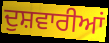
ਦੁਸ਼ਵਾਰੀਆਂ